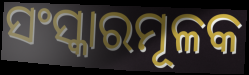
ସଂସ୍କାରମୂଳକ